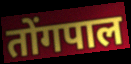
तोंगपाल